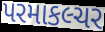
પરમાકલ્ચર